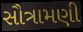
સૌત્રામણી